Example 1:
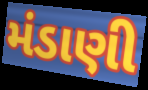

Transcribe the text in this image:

મંડાણી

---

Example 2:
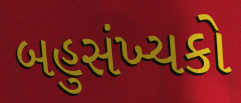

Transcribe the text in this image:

બહુસંખ્યકો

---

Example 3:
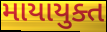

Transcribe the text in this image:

માયાયુક્ત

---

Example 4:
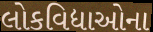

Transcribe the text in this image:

લોકવિદ્યાઓના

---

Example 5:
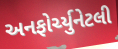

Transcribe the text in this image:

અનફોર્ચ્યુનેટલી